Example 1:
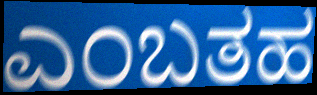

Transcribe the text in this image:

ಎಂಬತಹ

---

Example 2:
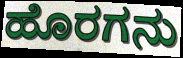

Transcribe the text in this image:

ಹೊರಗನು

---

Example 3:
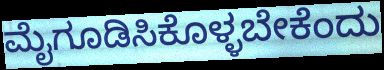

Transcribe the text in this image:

ಮೈಗೂಡಿಸಿಕೊಳ್ಳಬೇಕೆಂದು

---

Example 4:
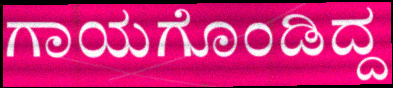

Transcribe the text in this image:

ಗಾಯಗೊಂಡಿದ್ದ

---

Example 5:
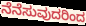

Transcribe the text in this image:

ನೆನೆಸುವುದರಿಂದ